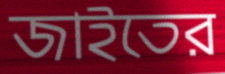
জাইতের